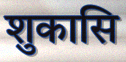
शुकासि